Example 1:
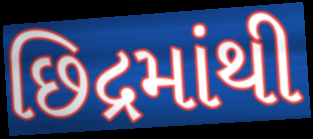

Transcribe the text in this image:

છિદ્રમાંથી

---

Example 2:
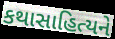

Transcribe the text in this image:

કથાસાહિત્યને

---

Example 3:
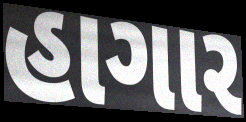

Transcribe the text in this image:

હાગાર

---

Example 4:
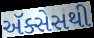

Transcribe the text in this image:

ઍક્સેસથી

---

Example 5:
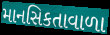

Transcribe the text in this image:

માનસિકતાવાળા